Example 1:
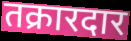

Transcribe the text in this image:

तक्रारदार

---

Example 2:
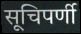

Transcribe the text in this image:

सूचिपर्णी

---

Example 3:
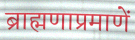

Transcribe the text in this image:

ब्राह्मणाप्रमाणें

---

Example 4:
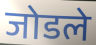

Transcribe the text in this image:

जोडले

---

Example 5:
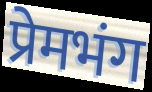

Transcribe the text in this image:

प्रेमभंग